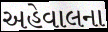
અહેવાલના